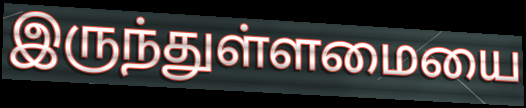
இருந்துள்ளமையை